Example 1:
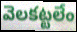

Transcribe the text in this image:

వెలకట్టలేం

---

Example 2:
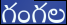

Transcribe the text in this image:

గంగల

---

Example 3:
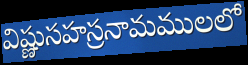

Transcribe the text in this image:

విష్ణుసహస్రనామములలో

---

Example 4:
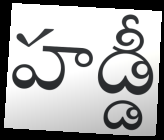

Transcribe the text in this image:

హడ్డీ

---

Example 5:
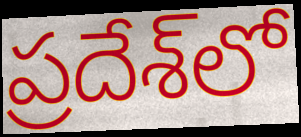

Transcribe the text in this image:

ప్రదేశ్‌లో